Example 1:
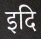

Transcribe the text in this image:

इदि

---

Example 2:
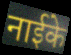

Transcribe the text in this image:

नाईके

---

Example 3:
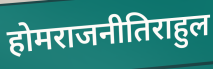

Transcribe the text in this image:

होमराजनीतिराहुल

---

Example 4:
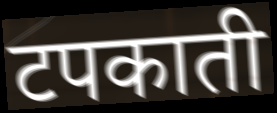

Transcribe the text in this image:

टपकाती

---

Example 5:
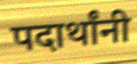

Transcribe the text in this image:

पदार्थांनी